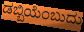
ಡಬ್ಬಿಯೆಂಬುದು